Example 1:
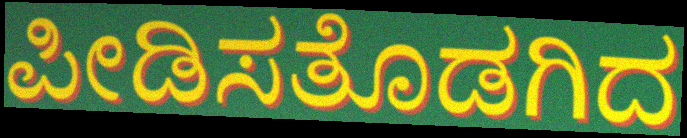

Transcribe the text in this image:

ಪೀಡಿಸತೊಡಗಿದ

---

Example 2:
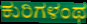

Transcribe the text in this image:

ಕುರಿಗಳಂಥ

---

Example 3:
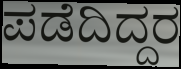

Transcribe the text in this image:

ಪಡೆದಿದ್ದರ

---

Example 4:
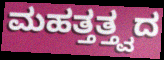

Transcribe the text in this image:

ಮಹತ್ತತ್ತ್ವದ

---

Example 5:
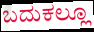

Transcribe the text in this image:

ಬದುಕಲ್ಲೂ